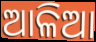
ଆଳିଆ